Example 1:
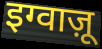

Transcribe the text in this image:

इग्वाज़ू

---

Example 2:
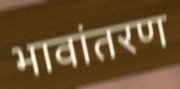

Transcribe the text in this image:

भावांतरण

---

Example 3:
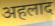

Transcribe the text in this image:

अहलाद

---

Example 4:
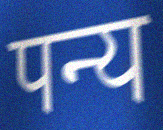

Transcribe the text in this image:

पन्य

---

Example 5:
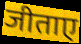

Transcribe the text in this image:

जीताए